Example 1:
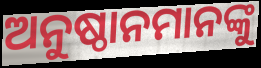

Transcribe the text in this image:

ଅନୁଷ୍ଠାନମାନଙ୍କୁ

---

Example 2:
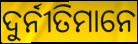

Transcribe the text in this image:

ଦୁର୍ନୀତିମାନେ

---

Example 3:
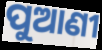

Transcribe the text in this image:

ପୁଆଣୀ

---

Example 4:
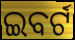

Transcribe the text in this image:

ଇବର୍ଟ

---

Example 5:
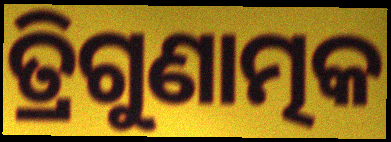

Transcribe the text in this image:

ତ୍ରିଗୁଣାତ୍ମକ